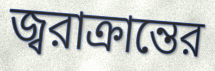
জ্বরাক্রান্তের